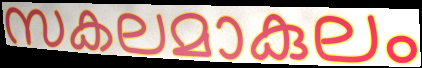
സകലമാകുലം